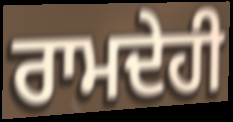
ਰਾਮਦੇਹੀ